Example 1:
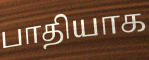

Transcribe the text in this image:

பாதியாக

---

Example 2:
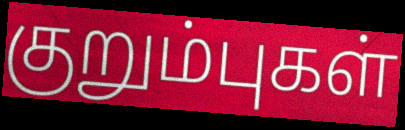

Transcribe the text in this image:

குறும்புகள்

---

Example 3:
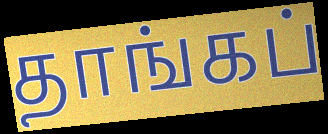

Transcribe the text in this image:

தாங்கப்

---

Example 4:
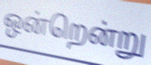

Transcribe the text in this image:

ஒன்றென்று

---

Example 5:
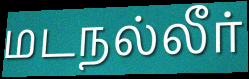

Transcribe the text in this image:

மடநல்லீர்